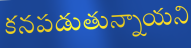
కనపడుతున్నాయని